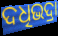
ଦଧିଭଦ୍ରା